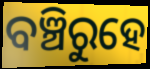
ବଞ୍ଚିରୁହେ